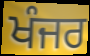
ਖੰਜਰ